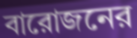
বারোজনের